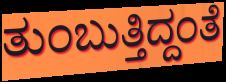
ತುಂಬುತ್ತಿದ್ದಂತೆ